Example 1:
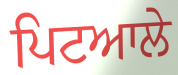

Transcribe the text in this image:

ਪਿਟਆਲੇ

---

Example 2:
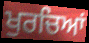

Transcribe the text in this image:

ਖੁਰਚਿਆਂ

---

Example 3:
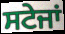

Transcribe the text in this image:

ਸਟੇਜਾਂ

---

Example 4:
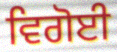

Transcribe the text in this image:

ਵਿਗੋਈ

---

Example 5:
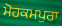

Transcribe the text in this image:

ਮੋਹਕਮਪੁਰਾ